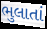
ભુલાતાં